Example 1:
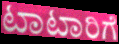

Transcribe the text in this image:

ಟಾಟಾರಿಗೆ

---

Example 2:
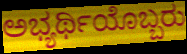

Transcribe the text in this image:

ಅಭ್ಯರ್ಥಿಯೊಬ್ಬರು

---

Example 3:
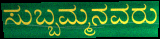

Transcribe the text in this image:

ಸುಬ್ಬಮ್ಮನವರು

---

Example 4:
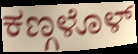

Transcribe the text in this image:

ಕಣ್ಗಳೊಳ್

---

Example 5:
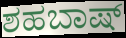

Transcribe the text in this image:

ಶಹಬಾಷ್